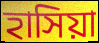
হাসিয়া